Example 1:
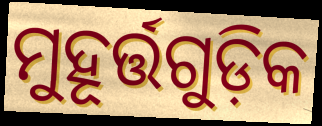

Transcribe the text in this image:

ମୁହୂର୍ତ୍ତଗୁଡ଼ିକ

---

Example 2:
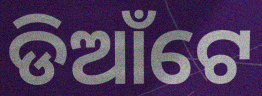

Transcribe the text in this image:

ଡିଆଁଟେ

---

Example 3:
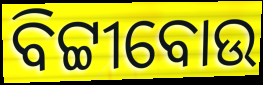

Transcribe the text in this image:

ବିଟ୍ଟୀବୋଉ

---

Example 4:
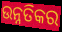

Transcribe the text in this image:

ଉନ୍ନତିକର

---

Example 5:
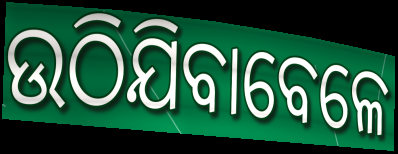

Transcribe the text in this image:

ଉଠିଯିବାବେଳେ